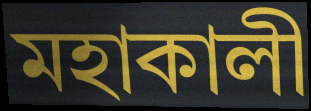
মহাকালী